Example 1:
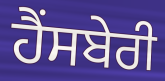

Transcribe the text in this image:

ਹੈਂਸਬੇਰੀ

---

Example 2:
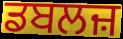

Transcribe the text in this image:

ਡਬਲਜ਼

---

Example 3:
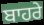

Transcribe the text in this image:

ਬਾਹਰੇ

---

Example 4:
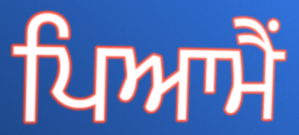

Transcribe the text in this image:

ਪਿਆਮੈਂ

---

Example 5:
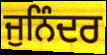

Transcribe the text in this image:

ਜੁਨਿੰਦਰ